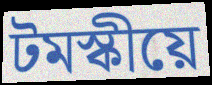
টমস্কীয়ে